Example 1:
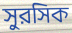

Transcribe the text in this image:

সুরসিক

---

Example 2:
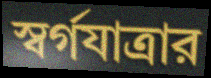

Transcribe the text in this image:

স্বর্গযাত্রার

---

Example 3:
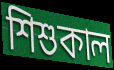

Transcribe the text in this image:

শিশুকাল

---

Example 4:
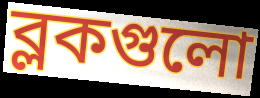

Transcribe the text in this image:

ব্লকগুলো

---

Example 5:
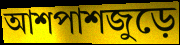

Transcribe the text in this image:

আশপাশজুড়ে